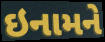
ઇનામને